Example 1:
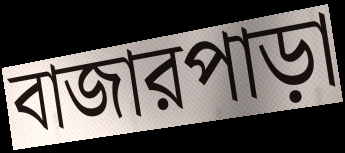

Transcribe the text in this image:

বাজারপাড়া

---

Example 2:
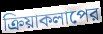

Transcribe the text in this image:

ক্রিয়াকলাপের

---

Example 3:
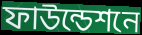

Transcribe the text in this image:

ফাউন্ডেশনে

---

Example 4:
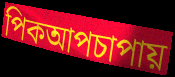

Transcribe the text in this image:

পিকআপচাপায়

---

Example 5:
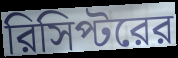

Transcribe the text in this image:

রিসিপ্টরের